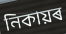
নিকায়ৰ